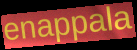
enappala